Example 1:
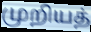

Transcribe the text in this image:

முறியத்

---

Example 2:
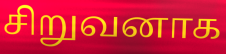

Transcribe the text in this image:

சிறுவனாக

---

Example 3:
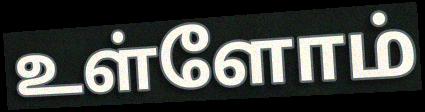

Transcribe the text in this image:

உள்ளோம்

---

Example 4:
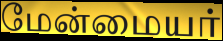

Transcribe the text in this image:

மேன்மையர்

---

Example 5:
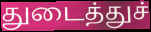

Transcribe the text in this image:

துடைத்துச்